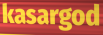
kasargod